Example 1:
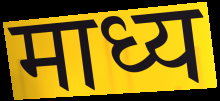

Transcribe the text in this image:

माध्‍य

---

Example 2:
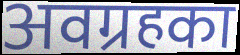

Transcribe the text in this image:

अवग्रहका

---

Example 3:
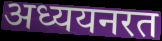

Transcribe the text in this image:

अध्ययनरत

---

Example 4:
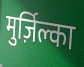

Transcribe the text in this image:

मुर्ज़िल्का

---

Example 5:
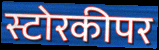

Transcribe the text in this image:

स्टोरकीपर